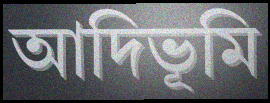
আদিভূমি